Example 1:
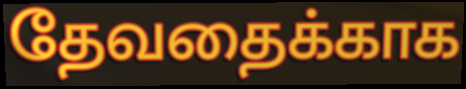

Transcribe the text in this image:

தேவதைக்காக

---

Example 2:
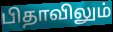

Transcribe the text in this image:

பிதாவிலும்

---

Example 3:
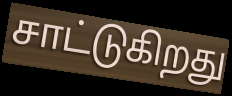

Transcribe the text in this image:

சாட்டுகிறது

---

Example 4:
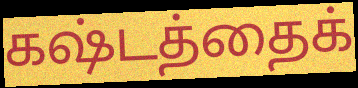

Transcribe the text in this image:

கஷ்டத்தைக்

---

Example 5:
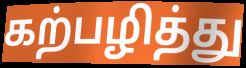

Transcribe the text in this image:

கற்பழித்து